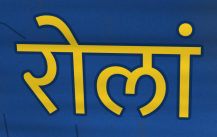
रोलां